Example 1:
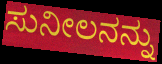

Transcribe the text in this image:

ಸುನೀಲನನ್ನು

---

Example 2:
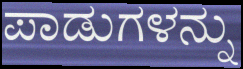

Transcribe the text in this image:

ಪಾಡುಗಳನ್ನು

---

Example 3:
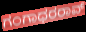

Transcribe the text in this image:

ಗಂಗಾಧರರಾವ್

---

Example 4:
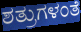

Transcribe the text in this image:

ಶತ್ರುಗಳಂತೆ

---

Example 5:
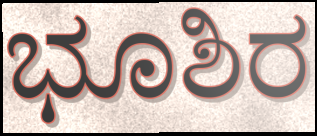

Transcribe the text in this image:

ಭೂಶಿರ